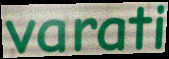
varati